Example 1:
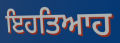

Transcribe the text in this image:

ਇਹਤਿਆਹ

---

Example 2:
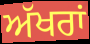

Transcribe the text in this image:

ਅੱਖਰਾਂ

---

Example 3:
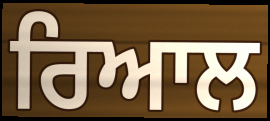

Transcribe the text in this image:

ਰਿਆਲ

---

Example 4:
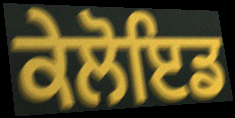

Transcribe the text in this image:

ਕੇਲੋਇਡ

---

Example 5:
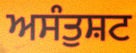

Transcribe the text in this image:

ਅਸੰਤੁਸ਼ਟ